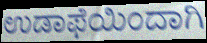
ಉಡಾಫೆಯಿಂದಾಗಿ